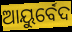
ଆୟୁର୍ବେଦ